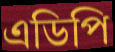
এডিপি